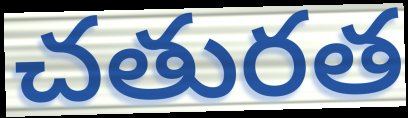
చతురత